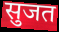
सुजत